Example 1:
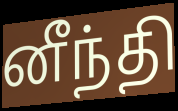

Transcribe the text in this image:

னீந்தி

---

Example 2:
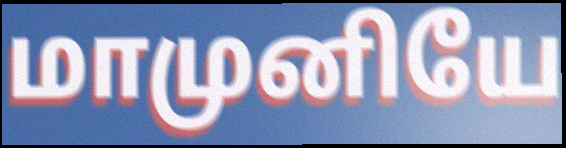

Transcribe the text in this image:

மாமுனியே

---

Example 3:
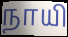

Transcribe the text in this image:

நாயி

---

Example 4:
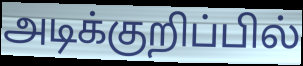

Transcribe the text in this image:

அடிக்குறிப்பில்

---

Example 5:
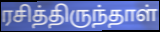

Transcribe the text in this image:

ரசித்திருந்தாள்